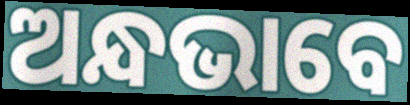
ଅନ୍ଧଭାବେ